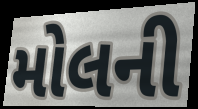
મોલની